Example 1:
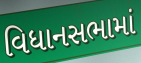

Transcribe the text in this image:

વિધાનસભામાં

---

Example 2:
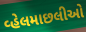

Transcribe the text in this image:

વ્હેલમાછલીઓ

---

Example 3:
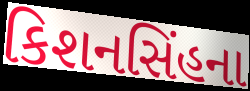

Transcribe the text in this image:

કિશનસિંહના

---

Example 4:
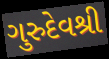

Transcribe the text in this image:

ગુરુદેવશ્રી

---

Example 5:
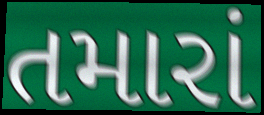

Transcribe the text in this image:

તમારાં